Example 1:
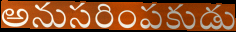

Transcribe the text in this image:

అనుసరింపకుడు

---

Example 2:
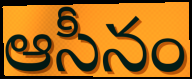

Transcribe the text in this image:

ఆసీనం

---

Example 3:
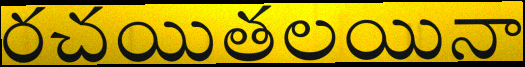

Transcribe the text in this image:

రచయితలయినా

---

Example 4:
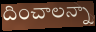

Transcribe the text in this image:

దించాలన్నా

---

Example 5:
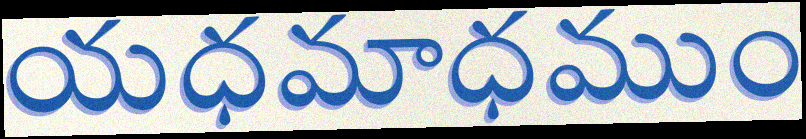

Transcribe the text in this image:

యధమాధముం